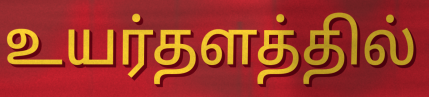
உயர்தளத்தில்